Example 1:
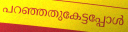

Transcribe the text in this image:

പറഞ്ഞതുകേട്ടപ്പോൾ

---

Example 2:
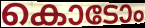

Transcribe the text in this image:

കൊടോം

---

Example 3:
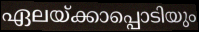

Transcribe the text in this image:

ഏലയ്ക്കാപ്പൊടിയും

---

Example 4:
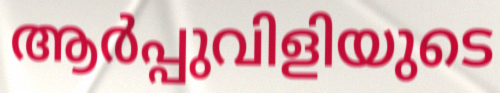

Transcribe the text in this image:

ആർപ്പുവിളിയുടെ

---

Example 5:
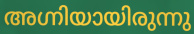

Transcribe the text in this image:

അഗ്നിയായിരുന്നു